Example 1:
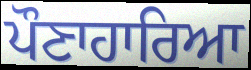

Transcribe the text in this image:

ਪੌਣਾਹਾਰਿਆ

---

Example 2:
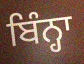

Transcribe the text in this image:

ਬਿੰਨ੍ਹਾ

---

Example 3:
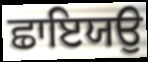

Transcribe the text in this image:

ਛਾਇਯਉ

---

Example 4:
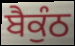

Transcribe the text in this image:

ਬੈਕੁੰਠ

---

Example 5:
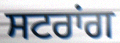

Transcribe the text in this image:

ਸਟਰਾਂਗ